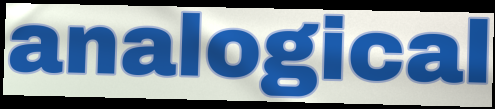
analogical